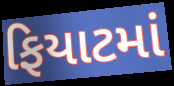
ફિયાટમાં